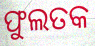
ଫୁଲତକ